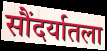
सौंदर्यातला